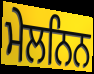
ਮੇਲਨਿਨ